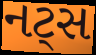
નટ્સ